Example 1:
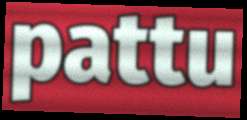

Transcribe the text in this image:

pattu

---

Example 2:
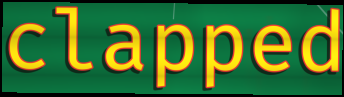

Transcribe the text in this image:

clapped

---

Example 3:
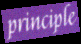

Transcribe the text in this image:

principle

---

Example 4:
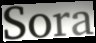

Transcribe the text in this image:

Sora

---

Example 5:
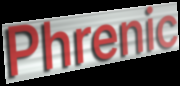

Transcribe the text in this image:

Phrenic